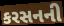
કરસનની